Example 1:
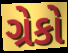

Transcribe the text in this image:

ગ્રેકો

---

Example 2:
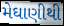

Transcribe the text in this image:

મેઘાણીથી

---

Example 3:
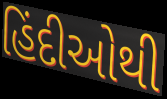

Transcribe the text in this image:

હિંદીઓથી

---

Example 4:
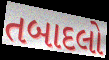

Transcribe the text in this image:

તબાદલો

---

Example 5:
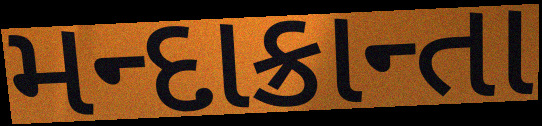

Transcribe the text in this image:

મન્દાક્રાન્તા